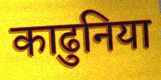
काढुनिया